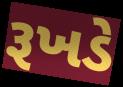
રૂખડે